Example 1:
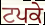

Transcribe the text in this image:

ਟਪਕੇ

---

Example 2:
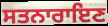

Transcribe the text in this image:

ਸਤਨਾਰਾਇਣ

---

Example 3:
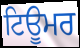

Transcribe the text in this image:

ਟਿਊਮਰ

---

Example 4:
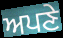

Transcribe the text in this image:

ਅਪਣੇ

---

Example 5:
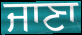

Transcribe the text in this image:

ਜਾਣਾ